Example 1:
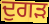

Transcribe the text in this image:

ਦੁਗੜ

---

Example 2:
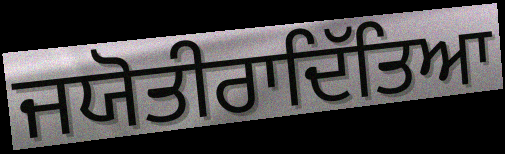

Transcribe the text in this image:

ਜਯੋਤੀਰਾਦਿੱਤਿਆ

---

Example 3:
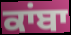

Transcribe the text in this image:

ਕਾਂਬਾ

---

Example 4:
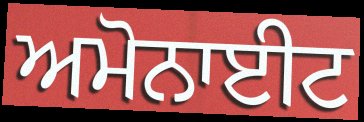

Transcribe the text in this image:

ਅਮੋਨਾਈਟ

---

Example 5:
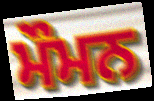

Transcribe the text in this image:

ਮੌਮਨ